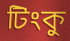
টিংকু